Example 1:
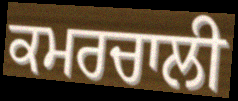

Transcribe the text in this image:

ਕਮਰਚਾਲੀ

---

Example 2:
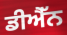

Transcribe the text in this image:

ਡੀਐੱਨ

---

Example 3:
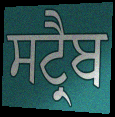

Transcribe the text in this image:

ਸਟ੍ਰੈਬ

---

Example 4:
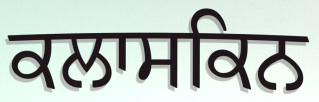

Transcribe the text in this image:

ਕਲਾਸਕਿਨ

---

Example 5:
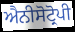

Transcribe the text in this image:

ਐਨੀਸੋਟ੍ਰੋਪੀ